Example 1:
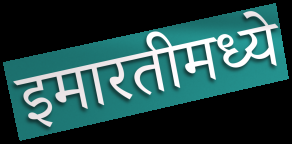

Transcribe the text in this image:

इमारतीमध्ये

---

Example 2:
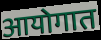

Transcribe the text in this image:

आयोगात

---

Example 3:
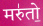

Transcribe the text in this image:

मरु॑तो॒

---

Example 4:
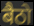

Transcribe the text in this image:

बैठो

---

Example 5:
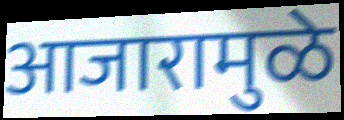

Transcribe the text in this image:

आजारामुळे